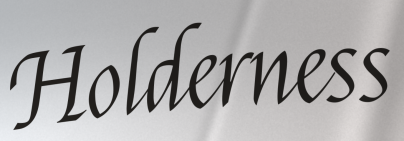
Holderness